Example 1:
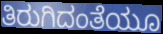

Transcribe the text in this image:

ತಿರುಗಿದಂತೆಯೂ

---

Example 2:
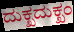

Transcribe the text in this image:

ದುಕ್ಖದುಕ್ಖಂ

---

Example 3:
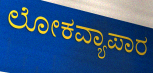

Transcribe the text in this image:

ಲೋಕವ್ಯಾಪಾರ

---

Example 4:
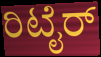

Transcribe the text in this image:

ರಿಟೈರ್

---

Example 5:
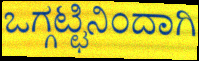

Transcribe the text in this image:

ಒಗ್ಗಟ್ಟಿನಿಂದಾಗಿ